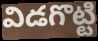
విడగొట్టి